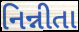
નિન્નીતા